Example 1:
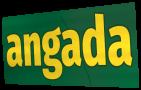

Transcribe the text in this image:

angada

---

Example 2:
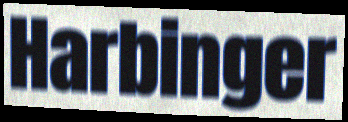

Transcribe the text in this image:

Harbinger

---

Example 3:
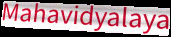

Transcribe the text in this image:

Mahavidyalaya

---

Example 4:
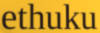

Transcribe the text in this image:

ethuku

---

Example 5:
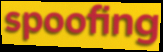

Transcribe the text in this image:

spoofing